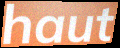
haut